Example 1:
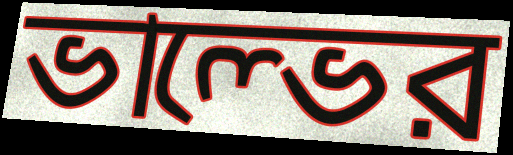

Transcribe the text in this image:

ভাল্ভের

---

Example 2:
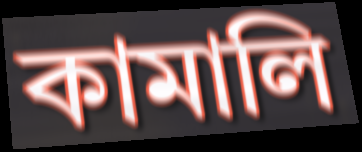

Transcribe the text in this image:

কামালি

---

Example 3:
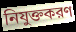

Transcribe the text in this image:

নিযুক্তকরণ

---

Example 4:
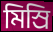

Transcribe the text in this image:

মিস্রি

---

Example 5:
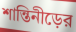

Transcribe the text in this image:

শান্তিনীড়ের